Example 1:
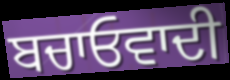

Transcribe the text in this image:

ਬਚਾਓਵਾਦੀ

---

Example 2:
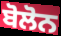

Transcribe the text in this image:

ਬੋਲੋਨ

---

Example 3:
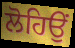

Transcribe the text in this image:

ਲੋਹਿਉਂ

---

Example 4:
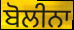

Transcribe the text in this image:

ਬੋਲੀਨਾ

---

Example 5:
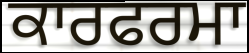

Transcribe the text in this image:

ਕਾਰਫਰਮਾ